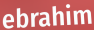
ebrahim